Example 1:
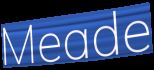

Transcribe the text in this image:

Meade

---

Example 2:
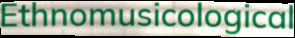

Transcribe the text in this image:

Ethnomusicological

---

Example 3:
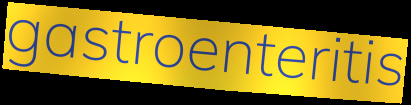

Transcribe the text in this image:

gastroenteritis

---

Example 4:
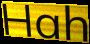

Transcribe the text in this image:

Hah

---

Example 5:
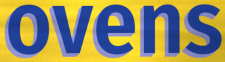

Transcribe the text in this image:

ovens